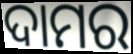
ଦାମର